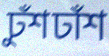
ঢুঁশঢাঁশ